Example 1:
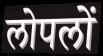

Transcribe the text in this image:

लोपलों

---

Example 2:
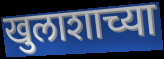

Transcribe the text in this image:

खुलाशाच्या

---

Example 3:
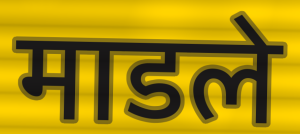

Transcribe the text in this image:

माडले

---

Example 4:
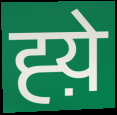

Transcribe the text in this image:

ह्य़े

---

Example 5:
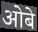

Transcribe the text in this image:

ओबे